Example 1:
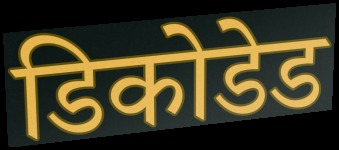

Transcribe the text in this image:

डिकोडेड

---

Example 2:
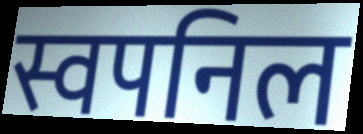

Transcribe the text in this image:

स्वपनिल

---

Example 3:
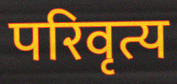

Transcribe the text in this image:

परिवृत्य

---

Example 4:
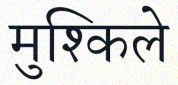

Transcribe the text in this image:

मुश्किले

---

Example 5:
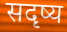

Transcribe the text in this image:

सदृष्य